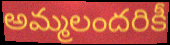
అమ్మలందరికీ